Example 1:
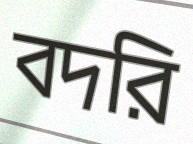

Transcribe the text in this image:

বদরি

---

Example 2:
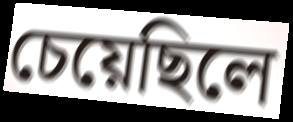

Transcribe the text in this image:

চেয়েছিলে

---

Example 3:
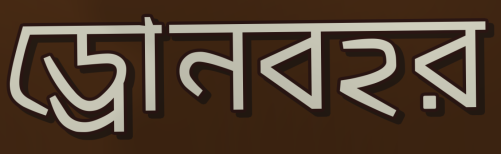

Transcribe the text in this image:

ড্রোনবহর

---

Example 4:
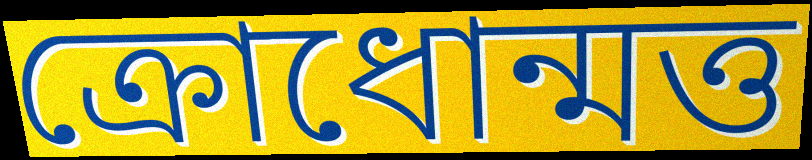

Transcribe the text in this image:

ক্রোধোন্মত্ত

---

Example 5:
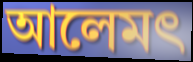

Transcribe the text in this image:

আলেমৎ